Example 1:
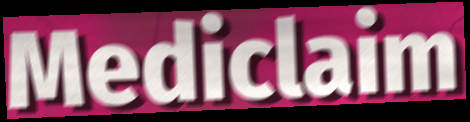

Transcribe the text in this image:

Mediclaim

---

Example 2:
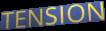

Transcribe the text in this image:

TENSION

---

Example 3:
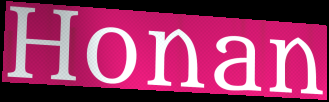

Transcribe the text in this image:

Honan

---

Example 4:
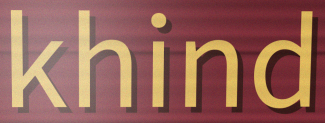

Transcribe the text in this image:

khind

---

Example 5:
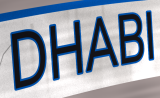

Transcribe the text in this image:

DHABI